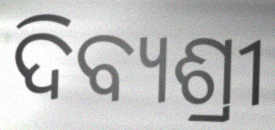
ଦିବ୍ୟଶ୍ରୀ